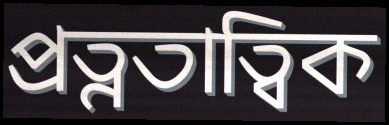
প্রত্নতাত্বিক